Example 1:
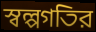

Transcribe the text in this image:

স্বল্পগতির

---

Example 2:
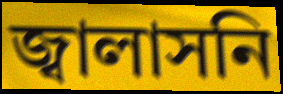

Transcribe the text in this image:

জ্বালাসনি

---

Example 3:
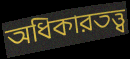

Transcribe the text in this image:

অধিকারতত্ত্ব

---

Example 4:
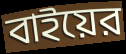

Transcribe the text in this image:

বাইয়ের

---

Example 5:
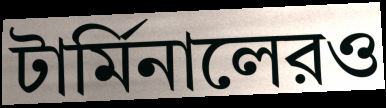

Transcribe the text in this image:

টার্মিনালেরও